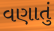
વણાતું